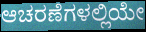
ಆಚರಣೆಗಳಲ್ಲಿಯೇ